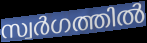
സ്വർഗത്തിൽ